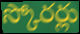
స్కోరర్లు